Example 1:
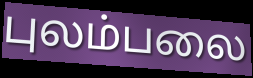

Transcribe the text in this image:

புலம்பலை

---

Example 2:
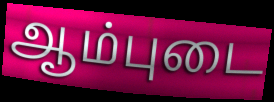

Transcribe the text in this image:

ஆம்புடை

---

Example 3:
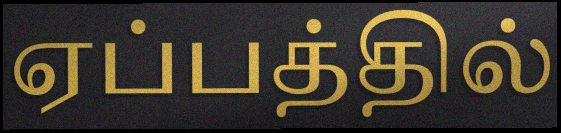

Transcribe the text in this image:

ஏப்பத்தில்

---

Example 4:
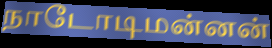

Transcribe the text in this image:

நாடோடிமன்னன்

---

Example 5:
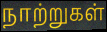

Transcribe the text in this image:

நாற்றுகள்